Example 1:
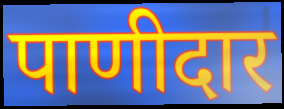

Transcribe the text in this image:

पाणीदार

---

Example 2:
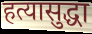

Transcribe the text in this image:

हत्यासुद्धा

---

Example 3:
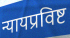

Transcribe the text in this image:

न्यायप्रविष्ट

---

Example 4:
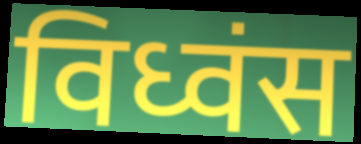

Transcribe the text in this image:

विध्वंस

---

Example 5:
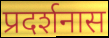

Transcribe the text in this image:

प्रदर्शनास